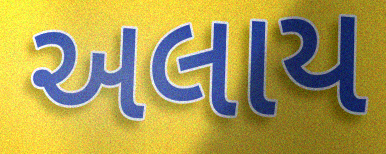
અલાય